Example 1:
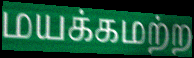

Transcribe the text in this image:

மயக்கமற்ற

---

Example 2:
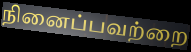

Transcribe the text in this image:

நினைப்பவற்றை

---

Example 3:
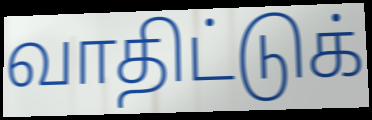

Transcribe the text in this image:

வாதிட்டுக்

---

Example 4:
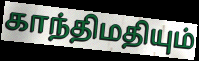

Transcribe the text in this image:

காந்திமதியும்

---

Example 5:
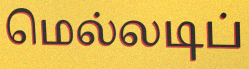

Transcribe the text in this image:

மெல்லடிப்